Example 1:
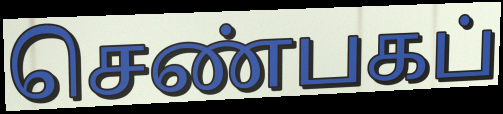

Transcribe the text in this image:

செண்பகப்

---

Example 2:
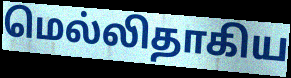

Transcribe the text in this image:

மெல்லிதாகிய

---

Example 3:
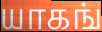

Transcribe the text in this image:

யாகங்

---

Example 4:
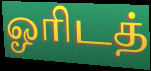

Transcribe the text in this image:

ஓரிடத்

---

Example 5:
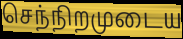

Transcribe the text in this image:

செந்நிறமுடைய